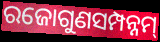
ରଜୋଗୁଣସମ୍ପନ୍ନମ୍